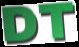
DT